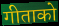
गीताको